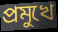
প্ৰমুখে